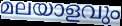
മലയാളവും